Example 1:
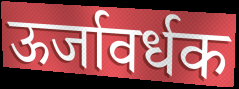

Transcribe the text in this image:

ऊर्जावर्धक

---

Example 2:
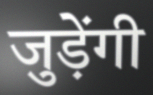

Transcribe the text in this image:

जुड़ेंगी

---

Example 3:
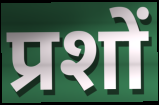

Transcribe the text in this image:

प्रशों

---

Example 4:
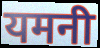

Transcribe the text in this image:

यमनी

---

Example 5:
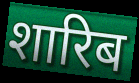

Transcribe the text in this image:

शारिब